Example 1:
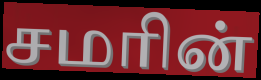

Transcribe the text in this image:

சமரின்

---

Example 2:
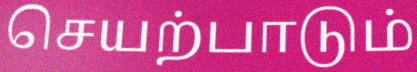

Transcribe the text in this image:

செயற்பாடும்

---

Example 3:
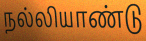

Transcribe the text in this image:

நல்லியாண்டு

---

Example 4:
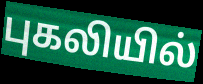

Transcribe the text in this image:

புகலியில்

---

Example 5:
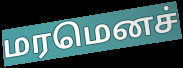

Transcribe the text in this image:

மரமெனச்